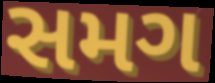
સમગ